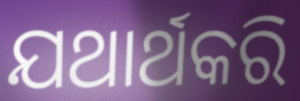
ଯଥାର୍ଥକରି